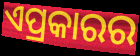
ଏପ୍ରକାରର